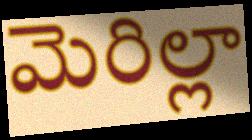
మెరిల్లా